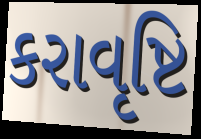
કરાવૃષ્ટિ